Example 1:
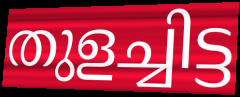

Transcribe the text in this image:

തുളച്ചിട്ട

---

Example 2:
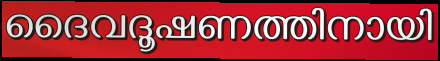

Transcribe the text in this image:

ദൈവദൂഷണത്തിനായി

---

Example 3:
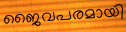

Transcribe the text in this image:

ജൈവപരമായി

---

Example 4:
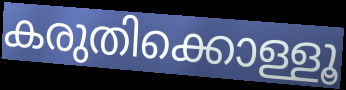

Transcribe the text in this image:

കരുതിക്കൊള്ളൂ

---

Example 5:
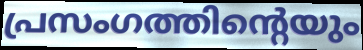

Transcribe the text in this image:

പ്രസംഗത്തിന്റെയും